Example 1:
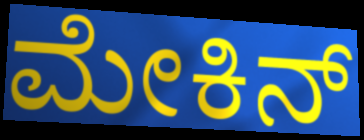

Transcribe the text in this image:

ಮೇಕಿನ್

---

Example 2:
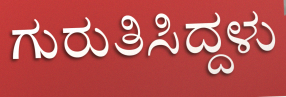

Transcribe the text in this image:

ಗುರುತಿಸಿದ್ದಳು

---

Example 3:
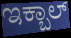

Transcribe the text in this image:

ಇಕ್ಬಾಲ್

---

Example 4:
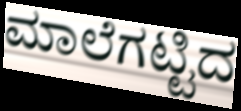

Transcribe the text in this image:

ಮಾಲೆಗಟ್ಟಿದ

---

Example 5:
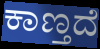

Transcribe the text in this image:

ಕಾಣ್ತದೆ